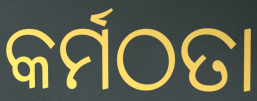
କର୍ମଠତା